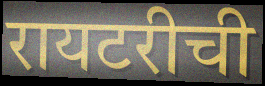
रायटरीची